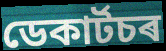
ডেকাৰ্টচৰ